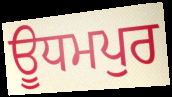
ਊਧਮਪੁਰ